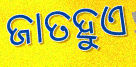
ଜାତହୁଏ